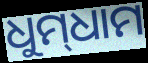
ଧୁମ୍‌ଧାମ